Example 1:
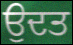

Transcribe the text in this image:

ਉਦਤ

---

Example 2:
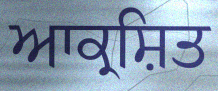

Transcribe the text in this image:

ਆਕ੍ਰਸ਼ਿਤ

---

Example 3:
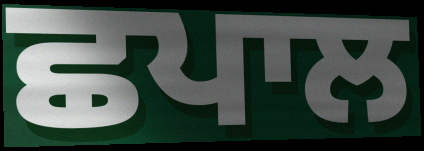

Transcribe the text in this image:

ਛਪਾਲ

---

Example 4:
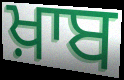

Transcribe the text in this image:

ਖ਼ਾਬ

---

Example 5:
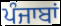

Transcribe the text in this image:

ਪੰਜਾਬਾਂ